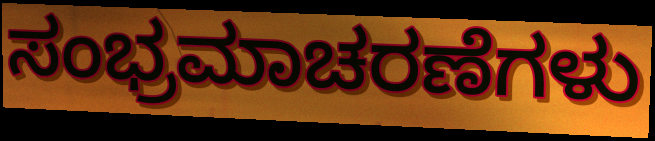
ಸಂಭ್ರಮಾಚರಣೆಗಳು